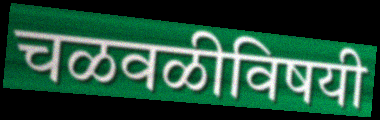
चळवळीविषयी